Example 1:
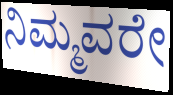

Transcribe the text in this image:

ನಿಮ್ಮವರೇ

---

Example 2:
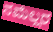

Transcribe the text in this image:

ನಮೆಲ್ಲರ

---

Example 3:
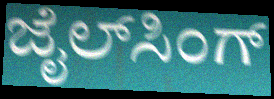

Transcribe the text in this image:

ಜೈಲ್‌ಸಿಂಗ್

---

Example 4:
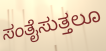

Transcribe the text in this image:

ಸಂತೈಸುತ್ತಲೂ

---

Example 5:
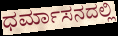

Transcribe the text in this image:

ಧರ್ಮಾಸನದಲ್ಲಿ